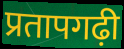
प्रतापगढ़ी